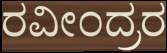
ರವೀಂದ್ರರ